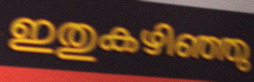
ഇതുകഴിഞ്ഞു